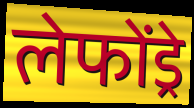
लेफोंड्रे